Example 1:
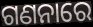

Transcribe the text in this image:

ଗଣନାରେ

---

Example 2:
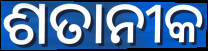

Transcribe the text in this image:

ଶତାନୀକ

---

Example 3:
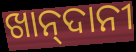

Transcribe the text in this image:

ଖାନ୍‍ଦାନୀ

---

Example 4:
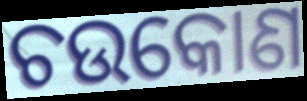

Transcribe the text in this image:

ଚଉକୋଣ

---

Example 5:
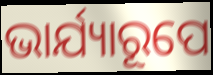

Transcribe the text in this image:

ଭାର୍ଯ୍ୟାରୂପେ